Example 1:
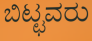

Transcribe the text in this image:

ಬಿಟ್ಟವರು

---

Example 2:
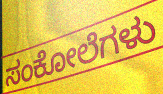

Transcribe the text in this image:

ಸಂಕೋಲೆಗಳು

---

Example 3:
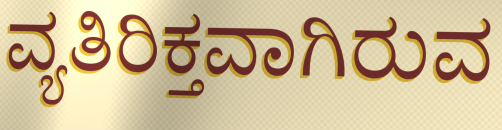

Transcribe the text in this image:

ವ್ಯತಿರಿಕ್ತವಾಗಿರುವ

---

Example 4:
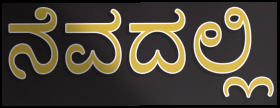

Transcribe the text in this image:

ನೆವದಲ್ಲಿ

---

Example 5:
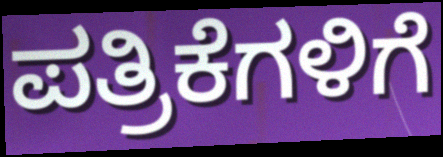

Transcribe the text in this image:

ಪತ್ರಿಕೆಗಳಿಗೆ